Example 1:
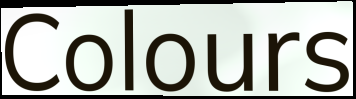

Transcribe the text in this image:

Colours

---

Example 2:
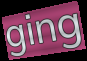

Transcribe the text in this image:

ging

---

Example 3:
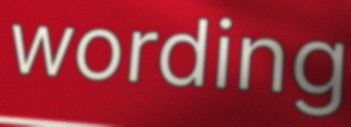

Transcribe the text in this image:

wording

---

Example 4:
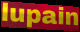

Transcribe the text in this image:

lupain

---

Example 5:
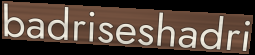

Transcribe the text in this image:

badriseshadri